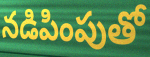
నడిపింపుతో